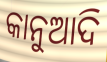
କାନୁଆଦି